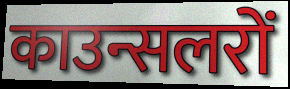
काउन्सलरों